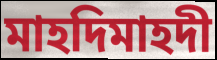
মাহদিমাহদী